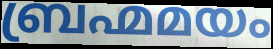
ബ്രഹ്മമയം